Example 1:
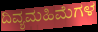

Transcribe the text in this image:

ದಿವ್ಯಮಹಿಮೆಗಳ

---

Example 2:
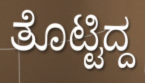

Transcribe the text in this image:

ತೊಟ್ಟಿದ್ದ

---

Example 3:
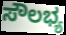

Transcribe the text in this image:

ಸೌಲಭ್ಯ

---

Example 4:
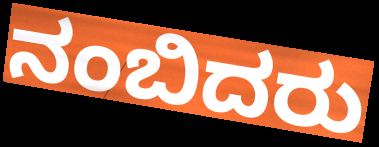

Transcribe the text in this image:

ನಂಬಿದರು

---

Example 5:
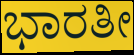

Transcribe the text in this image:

ಭಾರತೀ